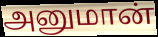
அனுமான்